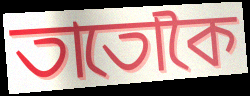
তাতোকৈ